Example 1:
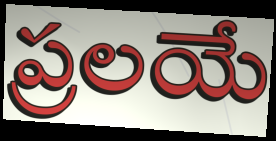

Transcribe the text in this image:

ప్రలయే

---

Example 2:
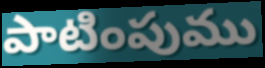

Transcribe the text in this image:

పాటింపుము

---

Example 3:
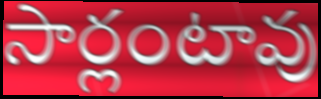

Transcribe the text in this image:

సార్లంటావు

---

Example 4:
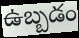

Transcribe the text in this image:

ఉబ్బడం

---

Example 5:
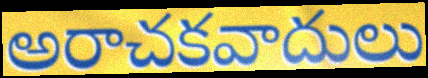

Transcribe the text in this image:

అరాచకవాదులు